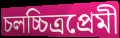
চলচ্চিত্রপ্রেমী